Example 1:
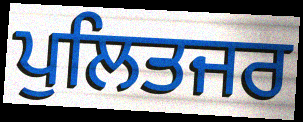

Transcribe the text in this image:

ਪੁਲਿਤਜਰ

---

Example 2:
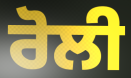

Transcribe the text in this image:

ਰੋਲੀ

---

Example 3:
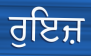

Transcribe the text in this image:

ਰੁਇਜ਼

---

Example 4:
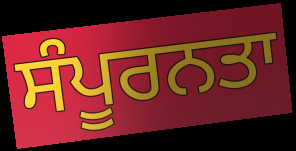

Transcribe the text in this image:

ਸੰਪੂਰਨਤਾ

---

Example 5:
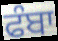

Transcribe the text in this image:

ਫੰਬਾ